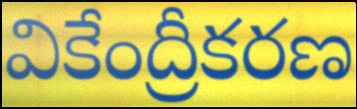
వికేంద్రీకరణ